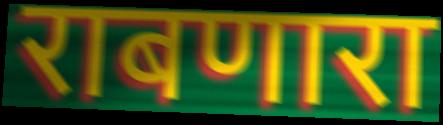
राबणारा